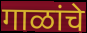
गाळांचे